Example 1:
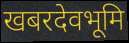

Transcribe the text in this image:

खबरदेवभूमि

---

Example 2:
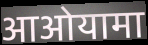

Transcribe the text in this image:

आओयामा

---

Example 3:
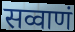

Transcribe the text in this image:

सव्वाणं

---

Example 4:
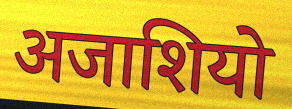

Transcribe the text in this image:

अजाशियो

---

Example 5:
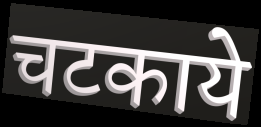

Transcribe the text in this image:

चटकाये